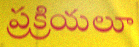
ప్రక్రియలూ